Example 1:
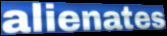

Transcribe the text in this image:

alienates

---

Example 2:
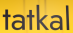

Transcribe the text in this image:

tatkal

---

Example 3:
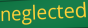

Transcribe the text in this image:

neglected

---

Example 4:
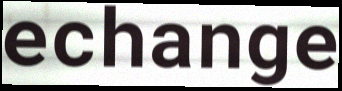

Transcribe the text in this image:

echange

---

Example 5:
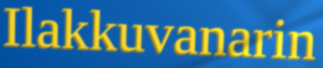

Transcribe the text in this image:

Ilakkuvanarin